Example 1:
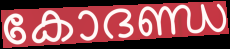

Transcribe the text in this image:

കോദണ്ഡ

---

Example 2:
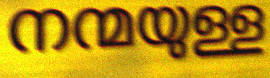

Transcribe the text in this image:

നന്മയുള്ള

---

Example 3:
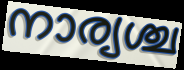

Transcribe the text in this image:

നാര്യശ്ച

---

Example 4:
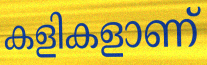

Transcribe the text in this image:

കളികളാണ്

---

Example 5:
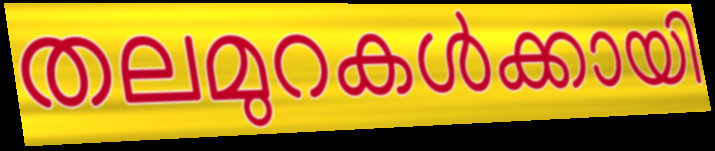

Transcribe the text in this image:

തലമുറകൾക്കായി